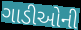
ગાડીઓની